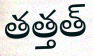
తత్తత్